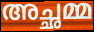
അച്ഛമ്മ